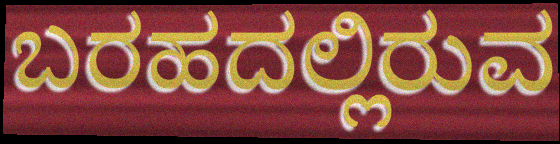
ಬರಹದಲ್ಲಿರುವ